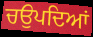
ਚਉਪਦਿਆਂ